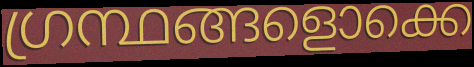
ഗ്രന്ഥങ്ങളൊക്കെ